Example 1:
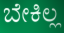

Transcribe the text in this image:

ಬೇಕಿಲ್ಲ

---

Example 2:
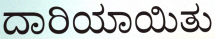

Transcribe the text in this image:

ದಾರಿಯಾಯಿತು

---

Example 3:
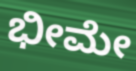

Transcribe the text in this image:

ಭೀಮೇ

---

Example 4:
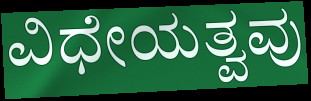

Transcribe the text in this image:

ವಿಧೇಯತ್ವವು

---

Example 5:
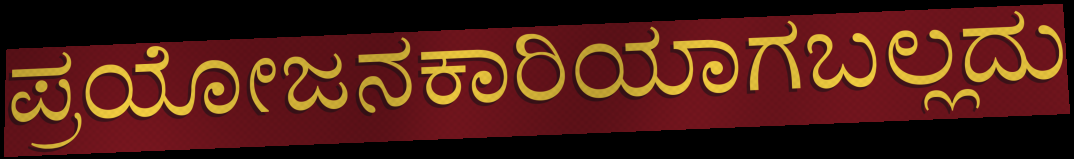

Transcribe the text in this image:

ಪ್ರಯೋಜನಕಾರಿಯಾಗಬಲ್ಲದು